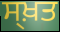
ਸ੍ਖ਼ਤ